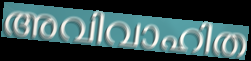
അവിവാഹിത